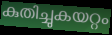
കുതിച്ചുകയറ്റം